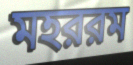
মহররম